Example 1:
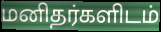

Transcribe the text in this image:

மனிதர்களிடம்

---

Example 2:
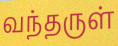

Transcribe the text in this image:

வந்தருள்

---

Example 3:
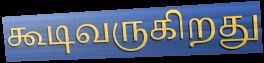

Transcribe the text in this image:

கூடிவருகிறது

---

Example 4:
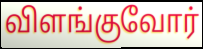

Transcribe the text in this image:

விளங்குவோர்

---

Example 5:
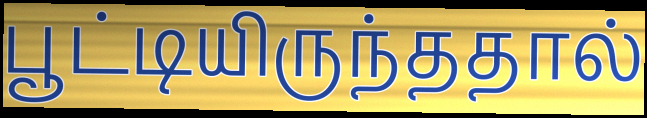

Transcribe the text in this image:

பூட்டியிருந்ததால்